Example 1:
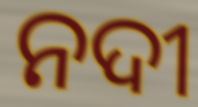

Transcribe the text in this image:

ନଦୀ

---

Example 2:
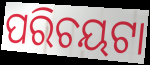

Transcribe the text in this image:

ପରିଚୟଟା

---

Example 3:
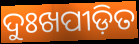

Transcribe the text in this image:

ଦୁଃଖପୀଡ଼ିତ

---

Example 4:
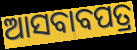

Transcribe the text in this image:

ଆସବାବପତ୍ର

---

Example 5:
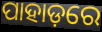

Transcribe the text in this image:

ପାହାଡ଼ରେ